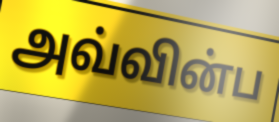
அவ்வின்ப